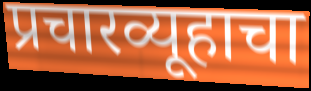
प्रचारव्यूहाचा